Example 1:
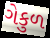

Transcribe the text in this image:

ગેકુળ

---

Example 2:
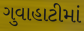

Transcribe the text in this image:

ગુવાહાટીમાં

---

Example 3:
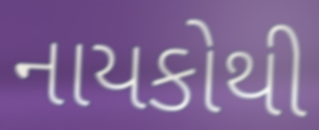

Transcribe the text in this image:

નાયકોથી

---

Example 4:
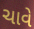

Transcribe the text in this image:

ચાવે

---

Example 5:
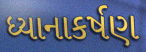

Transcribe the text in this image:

ધ્યાનાકર્ષણ